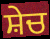
ਸ਼ੇਚ